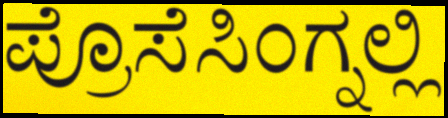
ಪ್ರೊಸೆಸಿಂಗ್ನಲ್ಲಿ